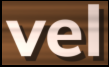
vel